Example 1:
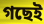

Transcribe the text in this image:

গছেই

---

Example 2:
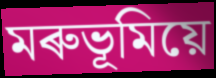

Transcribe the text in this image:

মৰুভূমিয়ে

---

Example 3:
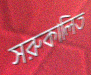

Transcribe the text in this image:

সৰুকালিত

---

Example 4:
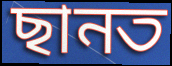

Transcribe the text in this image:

ছানত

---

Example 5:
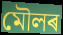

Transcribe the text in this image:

মৌলৰ